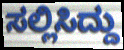
ಸಲ್ಲಿಸಿದ್ದು